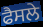
ਫੈਸਲੇ